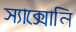
স্যাক্সোনি